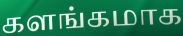
களங்கமாக